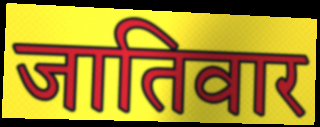
जातिवार